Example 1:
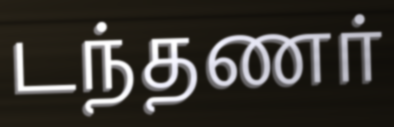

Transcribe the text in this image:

டந்தணர்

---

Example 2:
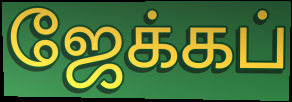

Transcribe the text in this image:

ஜேக்கப்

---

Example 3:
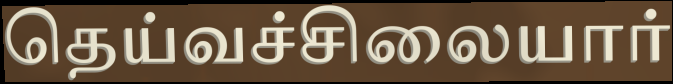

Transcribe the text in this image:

தெய்வச்சிலையார்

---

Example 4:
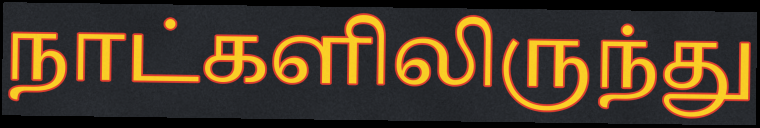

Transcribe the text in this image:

நாட்களிலிருந்து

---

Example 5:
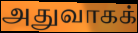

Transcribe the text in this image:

அதுவாகக்